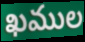
ఖముల